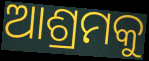
ଆଶ୍ରମକୁ